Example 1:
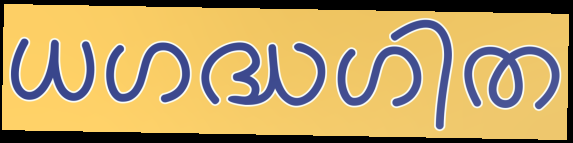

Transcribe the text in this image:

ധഗദ്ധഗിത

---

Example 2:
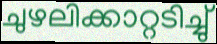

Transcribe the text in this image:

ചുഴലിക്കാറ്റടിച്ചു്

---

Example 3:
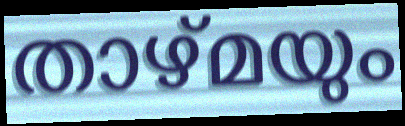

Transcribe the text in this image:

താഴ്മയും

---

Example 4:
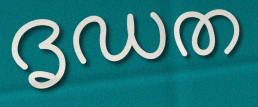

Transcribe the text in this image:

ദൃഡത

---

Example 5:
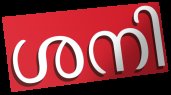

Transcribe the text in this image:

ശനി